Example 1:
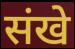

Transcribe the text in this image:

संखे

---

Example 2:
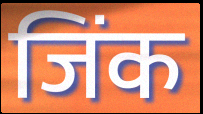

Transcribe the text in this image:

जिंक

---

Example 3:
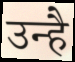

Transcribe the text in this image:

उन्है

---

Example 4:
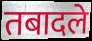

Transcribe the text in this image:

तबादले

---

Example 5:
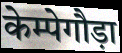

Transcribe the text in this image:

केम्पेगौड़ा